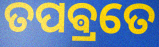
ତପଵ୍ରତେ